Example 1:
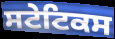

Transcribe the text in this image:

ਸਟੇਟਿਕਸ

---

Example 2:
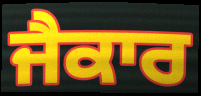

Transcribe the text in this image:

ਜੈਕਾਰ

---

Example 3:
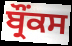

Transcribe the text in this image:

ਬ੍ਰੌਂਕਸ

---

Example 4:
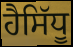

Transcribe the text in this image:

ਹੈਸਿੱਧੂ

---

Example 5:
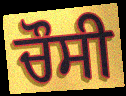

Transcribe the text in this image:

ਚੌਸੀ